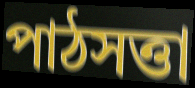
পাঠসত্তা